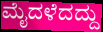
ಮೈದಳೆದದ್ದು